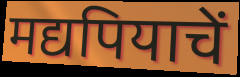
मद्यपियाचें